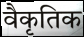
वैकृतिक